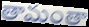
తామంతా